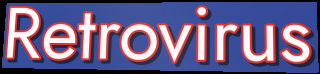
Retrovirus